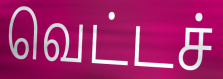
வெட்டச்